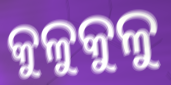
କୁଳୁକୁଳୁ